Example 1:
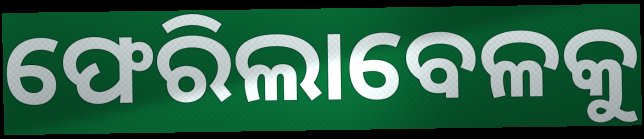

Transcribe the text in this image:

ଫେରିଲାବେଳକୁ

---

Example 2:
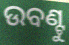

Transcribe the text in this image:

ଉବଣ୍ଟୁ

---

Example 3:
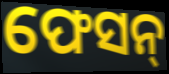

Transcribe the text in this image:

ଫେସନ୍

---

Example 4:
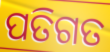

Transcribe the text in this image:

ପତିଗତ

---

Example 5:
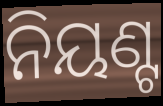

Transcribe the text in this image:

ନିୟଣ୍ଟ